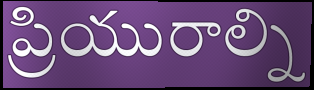
ప్రియురాల్ని